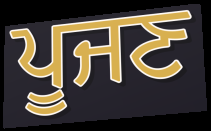
ਪੂਜਣ